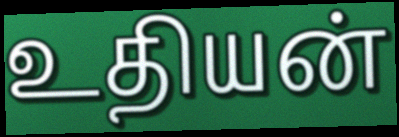
உதியன்